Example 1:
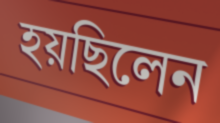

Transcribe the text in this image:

হয়ছিলেন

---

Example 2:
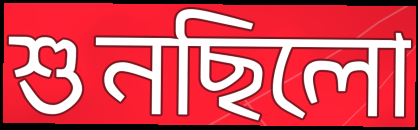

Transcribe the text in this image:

শুনছিলো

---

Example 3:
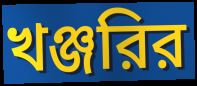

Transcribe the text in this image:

খঞ্জরির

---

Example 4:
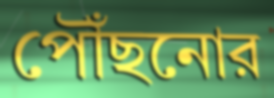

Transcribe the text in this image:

পৌঁছনোর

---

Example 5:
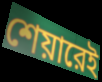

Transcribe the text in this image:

শেয়ারেই